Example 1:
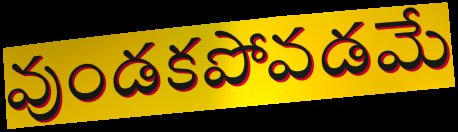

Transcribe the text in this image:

వుండకపోవడమే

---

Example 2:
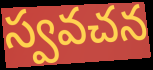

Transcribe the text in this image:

స్వవచన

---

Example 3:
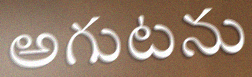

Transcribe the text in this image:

అగుటను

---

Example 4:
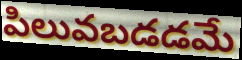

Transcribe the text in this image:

పిలువబడడమే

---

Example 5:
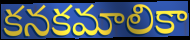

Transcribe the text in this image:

కనకమాలికా